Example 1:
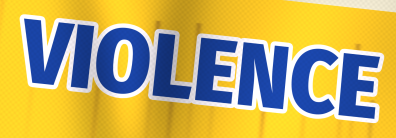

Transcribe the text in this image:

VIOLENCE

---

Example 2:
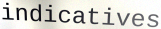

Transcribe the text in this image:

indicatives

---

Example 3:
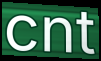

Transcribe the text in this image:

cnt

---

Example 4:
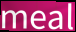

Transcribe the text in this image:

meal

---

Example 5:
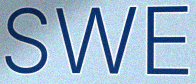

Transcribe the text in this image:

SWE